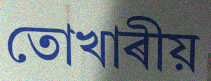
তোখাৰীয়